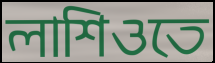
লাশিওতে